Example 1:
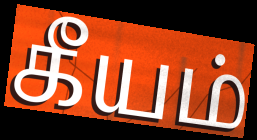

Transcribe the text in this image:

கீயம்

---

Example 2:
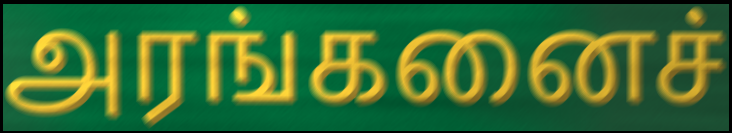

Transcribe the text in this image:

அரங்கனைச்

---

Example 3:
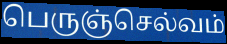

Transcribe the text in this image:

பெருஞ்செல்வம்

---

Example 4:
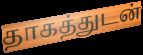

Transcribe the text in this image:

தாகத்துடன்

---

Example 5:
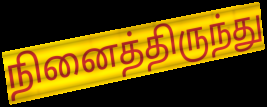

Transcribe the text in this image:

நினைத்திருந்து